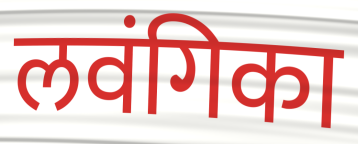
लवंगिका